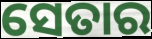
ସେତାର